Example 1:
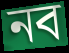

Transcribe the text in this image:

নব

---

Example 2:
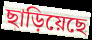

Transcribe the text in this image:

ছাড়িয়েছে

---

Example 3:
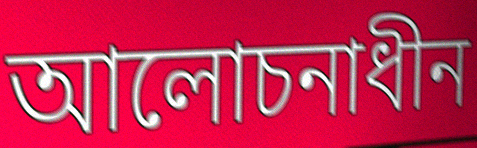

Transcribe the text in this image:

আলোচনাধীন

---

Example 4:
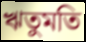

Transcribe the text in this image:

ঋতুমতি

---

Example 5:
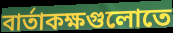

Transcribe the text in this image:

বার্তাকক্ষগুলোতে